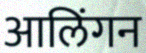
आलिंगन